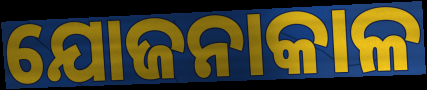
ଯୋଜନାକାଳ